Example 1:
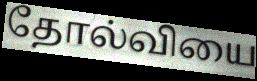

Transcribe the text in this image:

தோல்வியை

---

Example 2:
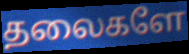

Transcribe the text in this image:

தலைகளே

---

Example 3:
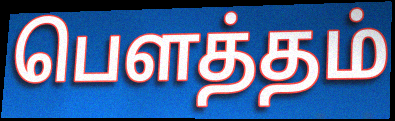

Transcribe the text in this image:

பௌத்தம்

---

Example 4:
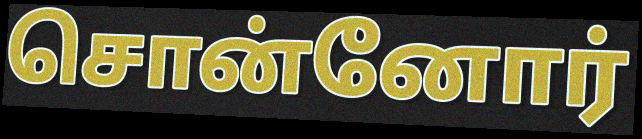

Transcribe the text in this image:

சொன்னோர்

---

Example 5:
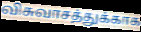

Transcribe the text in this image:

விசுவாசத்துக்காக